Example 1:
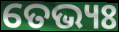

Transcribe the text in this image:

ତେଭ୍ୟଃ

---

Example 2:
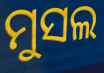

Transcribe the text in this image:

ମୁସଲ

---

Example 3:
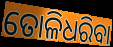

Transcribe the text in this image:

ତୋଳିଧରିବା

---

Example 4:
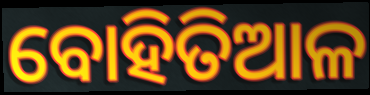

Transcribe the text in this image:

ବୋହିତିଆଳ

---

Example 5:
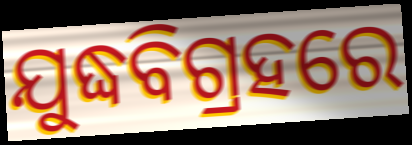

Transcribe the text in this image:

ଯୁଦ୍ଧବିଗ୍ରହରେ